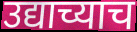
उद्याच्याच